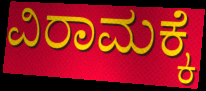
ವಿರಾಮಕ್ಕೆ